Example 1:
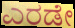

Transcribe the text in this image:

ಎರಡೇ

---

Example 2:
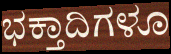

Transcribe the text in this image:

ಭಕ್ತಾದಿಗಳೂ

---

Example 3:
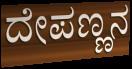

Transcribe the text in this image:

ದೇಪಣ್ಣನ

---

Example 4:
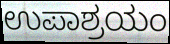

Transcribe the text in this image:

ಉಪಾಶ್ರಯಂ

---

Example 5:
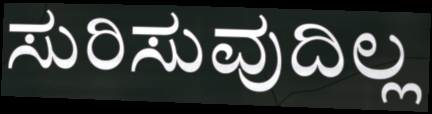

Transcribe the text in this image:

ಸುರಿಸುವುದಿಲ್ಲ